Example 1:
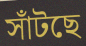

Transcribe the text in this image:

সাঁটছে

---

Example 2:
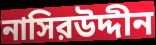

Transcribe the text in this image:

নাসিরউদ্দীন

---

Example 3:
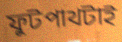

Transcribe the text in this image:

ফুটপাথটাই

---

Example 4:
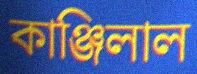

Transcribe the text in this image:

কাঞ্জিলাল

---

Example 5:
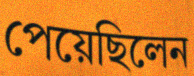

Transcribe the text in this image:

পেয়েছিলেন